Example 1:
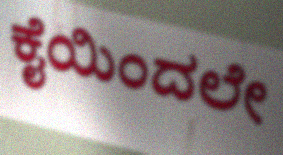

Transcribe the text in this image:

ಕೈಯಿಂದಲೇ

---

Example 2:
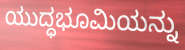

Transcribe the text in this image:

ಯುದ್ಧಭೂಮಿಯನ್ನು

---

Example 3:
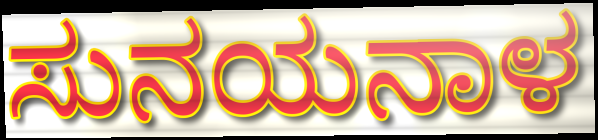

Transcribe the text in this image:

ಸುನಯನಾಳ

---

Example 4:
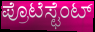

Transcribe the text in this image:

ಪ್ರೊಟೆಸ್ಟೆಂಟ್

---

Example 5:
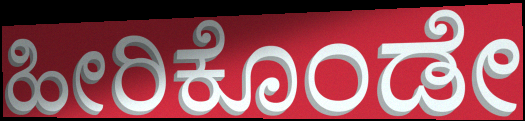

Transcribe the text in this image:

ಹೀರಿಕೊಂಡೇ